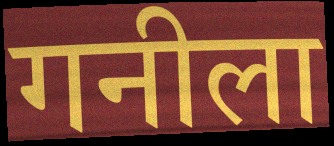
गनीला